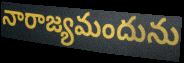
నారాజ్యమందును